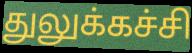
துலுக்கச்சி